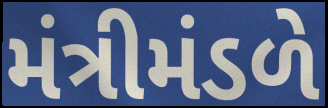
મંત્રીમંડળે